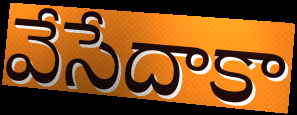
వేసేదాకా